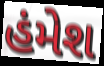
હંમેશ